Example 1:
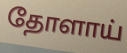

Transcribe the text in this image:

தோளாய்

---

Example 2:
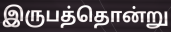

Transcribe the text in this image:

இருபத்தொன்று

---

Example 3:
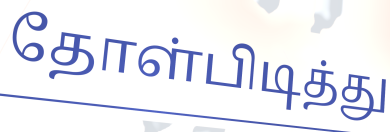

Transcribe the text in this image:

தோள்பிடித்து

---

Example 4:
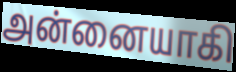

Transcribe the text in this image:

அன்னையாகி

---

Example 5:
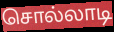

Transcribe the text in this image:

சொல்லாடி